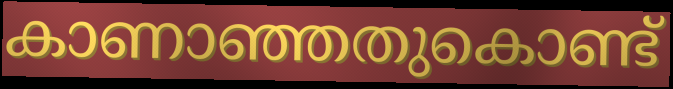
കാണാഞ്ഞതുകൊണ്ട്